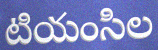
టియంసిల